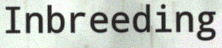
Inbreeding